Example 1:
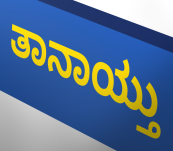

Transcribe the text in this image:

ತಾನಾಯ್ತು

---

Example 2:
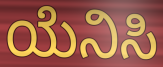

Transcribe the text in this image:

ಯೆನಿಸಿ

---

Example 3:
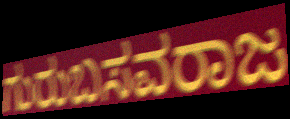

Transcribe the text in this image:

ಗುರುಬಸವರಾಜ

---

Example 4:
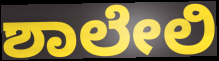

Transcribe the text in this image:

ಶಾಲೇಲಿ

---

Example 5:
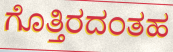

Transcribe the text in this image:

ಗೊತ್ತಿರದಂತಹ